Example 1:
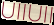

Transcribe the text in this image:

UIIUII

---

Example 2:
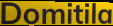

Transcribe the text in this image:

Domitila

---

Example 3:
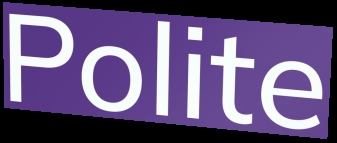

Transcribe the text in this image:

Polite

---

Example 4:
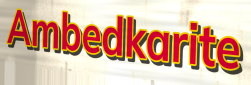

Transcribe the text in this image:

Ambedkarite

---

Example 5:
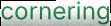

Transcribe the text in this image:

cornering